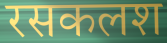
रसकलश